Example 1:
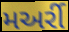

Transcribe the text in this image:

મઅર્રી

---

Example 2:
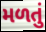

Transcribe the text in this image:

મળતું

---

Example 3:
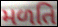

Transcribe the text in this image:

મળતિ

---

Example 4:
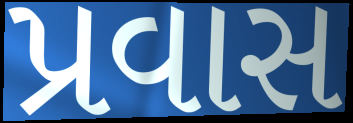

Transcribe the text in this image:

પ્રવાસ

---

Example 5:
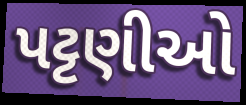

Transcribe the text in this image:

પટ્ટણીઓ